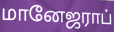
மானேஜராப்